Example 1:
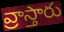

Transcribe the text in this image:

వ్రాస్తారు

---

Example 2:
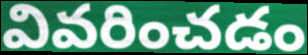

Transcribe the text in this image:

వివరించడం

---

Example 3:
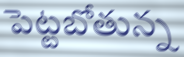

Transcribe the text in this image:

పెట్టబోతున్న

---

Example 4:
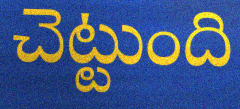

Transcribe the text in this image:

చెట్టుంది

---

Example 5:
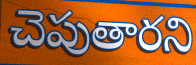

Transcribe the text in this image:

చెపుతారని